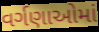
વર્ગણાઓમાં